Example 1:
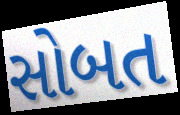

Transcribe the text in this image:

સોબત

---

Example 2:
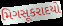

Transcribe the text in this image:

મિગસૂકરાદયો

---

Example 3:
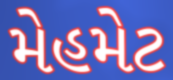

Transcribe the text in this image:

મેહમેટ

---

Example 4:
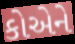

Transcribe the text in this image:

કોએને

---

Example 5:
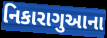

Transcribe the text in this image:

નિકારાગુઆના